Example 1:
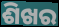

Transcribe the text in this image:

ଶିଖର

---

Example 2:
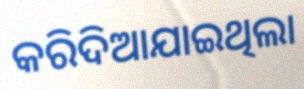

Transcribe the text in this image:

କରିଦିଆଯାଇଥିଲା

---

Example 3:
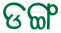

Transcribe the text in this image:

ଡଙ୍ଗ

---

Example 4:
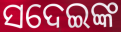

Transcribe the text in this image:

ସଦେଇଙ୍କ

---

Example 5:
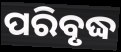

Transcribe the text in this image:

ପରିବୃଦ୍ଧ